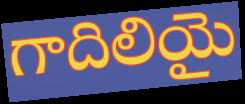
గాదిలియై